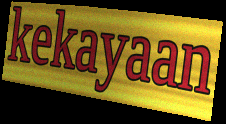
kekayaan